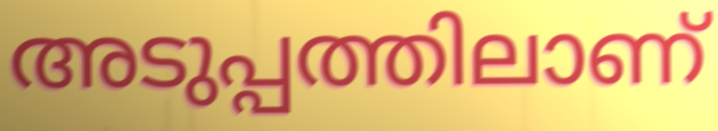
അടുപ്പത്തിലാണ്